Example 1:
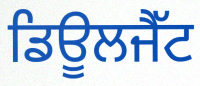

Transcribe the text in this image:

ਡਿਊਲਜੈੱਟ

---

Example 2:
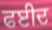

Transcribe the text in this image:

ਫਈਦ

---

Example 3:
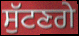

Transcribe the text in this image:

ਸੁੱਟਣਗੇ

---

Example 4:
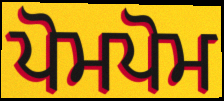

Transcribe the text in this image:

ਪੋਮਪੋਮ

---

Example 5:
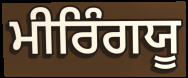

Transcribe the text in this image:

ਮੀਰਿੰਗਯੂ